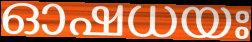
ഓഷധയഃ